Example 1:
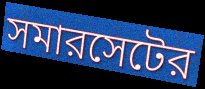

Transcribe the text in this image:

সমারসেটের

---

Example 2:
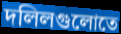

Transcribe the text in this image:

দলিলগুলোতে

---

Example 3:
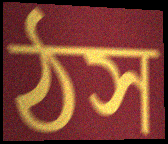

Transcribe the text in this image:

ঠস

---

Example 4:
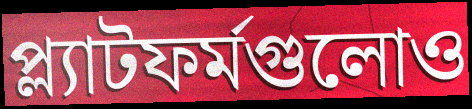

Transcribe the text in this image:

প্ল্যাটফর্মগুলোও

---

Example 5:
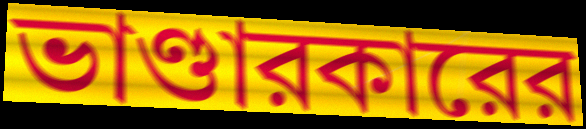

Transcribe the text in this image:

ভাণ্ডারকারের